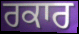
ਰਕਾਰ